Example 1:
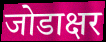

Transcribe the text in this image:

जोडाक्षर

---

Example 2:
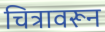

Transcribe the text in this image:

चित्रावरून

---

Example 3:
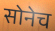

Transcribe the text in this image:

सोनेच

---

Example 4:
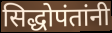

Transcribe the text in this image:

सिद्धोपंतांनी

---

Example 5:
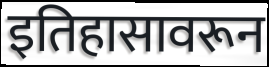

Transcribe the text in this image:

इतिहासावरून